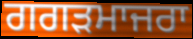
ਗਗੜਮਾਜਰਾ